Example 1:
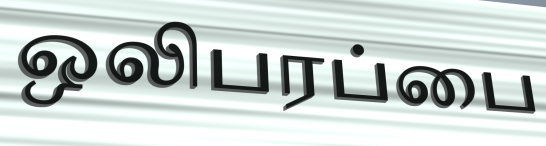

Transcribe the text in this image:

ஒலிபரப்பை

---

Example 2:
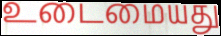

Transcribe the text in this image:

உடைமையது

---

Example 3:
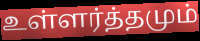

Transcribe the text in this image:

உள்ளர்த்தமும்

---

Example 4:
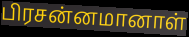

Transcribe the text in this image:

பிரசன்னமானாள்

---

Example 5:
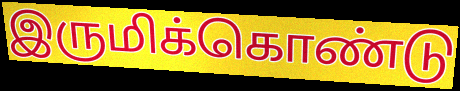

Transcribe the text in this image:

இருமிக்கொண்டு